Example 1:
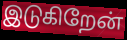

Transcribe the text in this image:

இடுகிறேன்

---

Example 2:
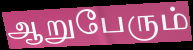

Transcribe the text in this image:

ஆறுபேரும்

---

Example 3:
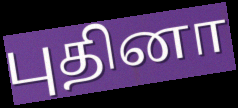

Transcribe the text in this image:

புதினா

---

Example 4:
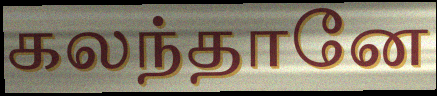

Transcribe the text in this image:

கலந்தானே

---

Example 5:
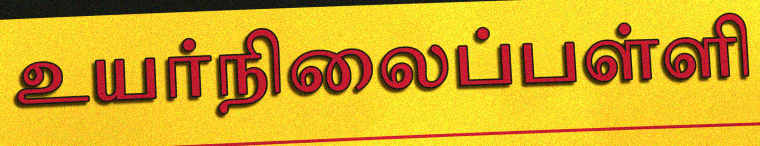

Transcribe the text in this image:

உயர்நிலைப்பள்ளி